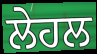
ਲੇਹਲ